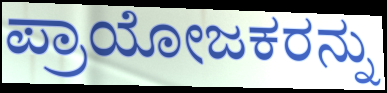
ಪ್ರಾಯೋಜಕರನ್ನು